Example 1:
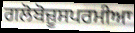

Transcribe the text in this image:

ਗਲੋਬੋਜ਼ੂਸਪਰਮੀਆ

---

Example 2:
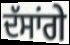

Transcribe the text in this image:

ਦੱਸਾਂਗੇ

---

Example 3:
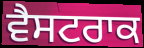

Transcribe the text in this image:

ਵੈਸਟਰਾਕ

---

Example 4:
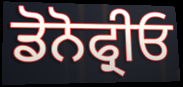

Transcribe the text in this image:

ਡੋਨੋਫ੍ਰੀਓ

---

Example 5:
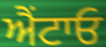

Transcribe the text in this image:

ਐਂਟਾਓ